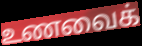
உணவைக்